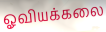
ஓவியக்கலை